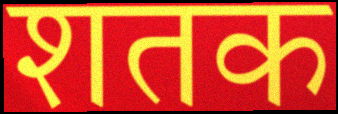
शतक